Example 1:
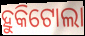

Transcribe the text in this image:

ହୁକିଟୋଲା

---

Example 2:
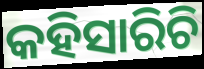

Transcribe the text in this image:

କହିସାରିଚି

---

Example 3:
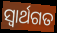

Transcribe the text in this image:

ସ୍ୱାର୍ଥଗତ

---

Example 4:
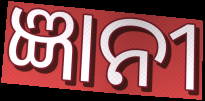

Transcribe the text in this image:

ଜ୍ଞାନୀ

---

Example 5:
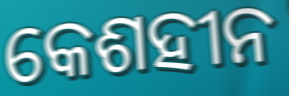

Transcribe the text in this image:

କେଶହୀନ